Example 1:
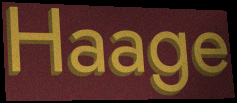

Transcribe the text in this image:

Haage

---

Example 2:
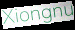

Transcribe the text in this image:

Xiongnu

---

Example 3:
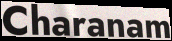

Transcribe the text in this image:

Charanam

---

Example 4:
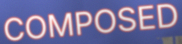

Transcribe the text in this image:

COMPOSED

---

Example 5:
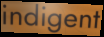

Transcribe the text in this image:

indigent